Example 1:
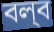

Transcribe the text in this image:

বল্‌ব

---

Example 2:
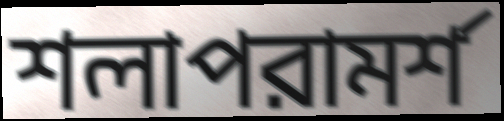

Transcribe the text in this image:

শলাপরামর্শ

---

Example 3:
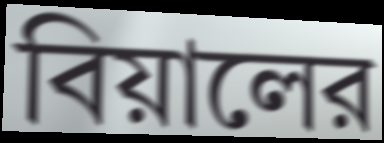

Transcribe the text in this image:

বিয়ালের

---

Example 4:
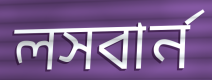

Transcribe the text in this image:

লসবার্ন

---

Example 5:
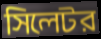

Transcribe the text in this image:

সিলেটর